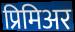
प्रिमिअर